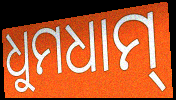
ଧୁମଧାମ୍